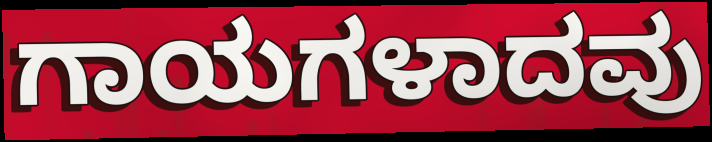
ಗಾಯಗಳಾದವು